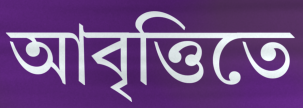
আবৃত্তিতে